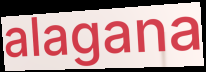
alagana